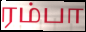
ரம்பா